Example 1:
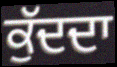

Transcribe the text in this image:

ਕੁੱਦਦਾ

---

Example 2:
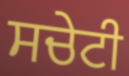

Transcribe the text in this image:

ਸਚੇਟੀ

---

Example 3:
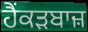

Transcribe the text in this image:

ਹੈਂਕੜਬਾਜ਼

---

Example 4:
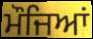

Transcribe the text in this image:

ਮੌਜਿਆਂ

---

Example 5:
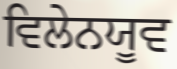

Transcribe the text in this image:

ਵਿਲੇਨਯੂਵ